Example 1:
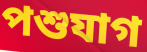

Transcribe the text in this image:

পশুযাগ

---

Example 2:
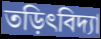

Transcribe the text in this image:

তড়িৎবিদ্যা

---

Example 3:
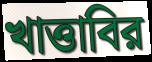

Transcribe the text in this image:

খাত্তাবির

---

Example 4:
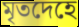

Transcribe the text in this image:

মৃতদেহে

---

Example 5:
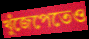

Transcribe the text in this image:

খুঁজেপেতেও